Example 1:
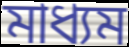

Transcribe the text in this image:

মাধ্যম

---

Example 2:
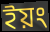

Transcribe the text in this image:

ইয়ং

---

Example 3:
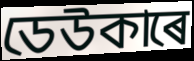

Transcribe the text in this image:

ডেউকাৰে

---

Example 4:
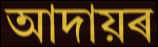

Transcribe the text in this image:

আদায়ৰ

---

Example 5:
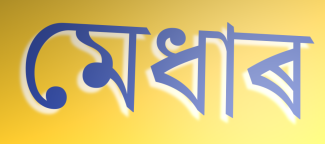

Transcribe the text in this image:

মেধাৰ